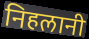
निहलानी